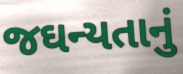
જઘન્યતાનું